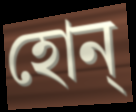
হোন্